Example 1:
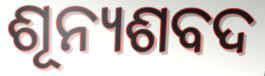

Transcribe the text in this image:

ଶୂନ୍ୟଶବଦ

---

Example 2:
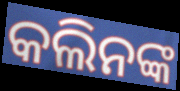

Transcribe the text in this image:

କଲିନଙ୍କ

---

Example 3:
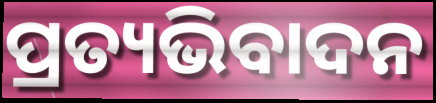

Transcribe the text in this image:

ପ୍ରତ୍ୟଭିବାଦନ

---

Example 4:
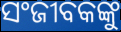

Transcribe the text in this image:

ସଂଜୀବକଙ୍କୁ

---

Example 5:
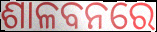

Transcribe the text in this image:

ଶାଳବନରେ